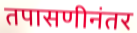
तपासणीनंतर